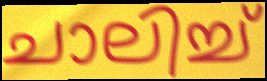
ചാലിച്ച്